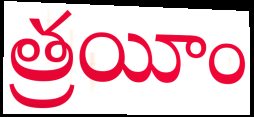
త్రయీం